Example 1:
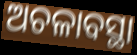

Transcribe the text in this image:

ଅଚଳାବସ୍ଥା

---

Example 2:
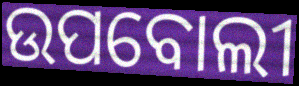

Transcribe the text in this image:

ଉପବୋଲୀ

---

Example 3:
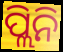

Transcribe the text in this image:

ପ୍ଲିନି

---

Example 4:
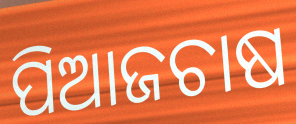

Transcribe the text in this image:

ପିଆଜଚାଷ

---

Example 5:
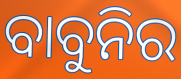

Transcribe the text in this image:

ବାବୁନିର